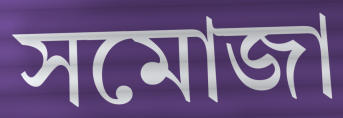
সমোজা